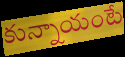
కున్నాయంటే